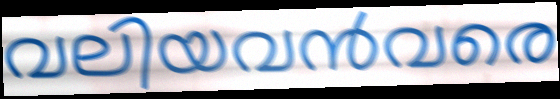
വലിയവൻവരെ